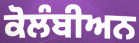
ਕੋਲੰਬੀਅਨ